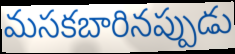
మసకబారినప్పుడు